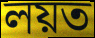
লয়ত